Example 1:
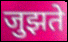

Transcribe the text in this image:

जुझते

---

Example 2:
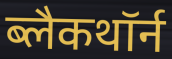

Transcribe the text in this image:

ब्लैकथॉर्न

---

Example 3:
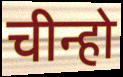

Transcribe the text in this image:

चीन्हो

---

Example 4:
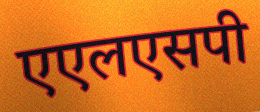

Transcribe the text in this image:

एएलएसपी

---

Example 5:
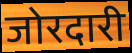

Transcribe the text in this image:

जोरदारी